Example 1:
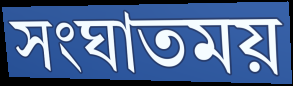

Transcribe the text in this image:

সংঘাতময়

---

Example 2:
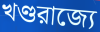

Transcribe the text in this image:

খণ্ডরাজ্যে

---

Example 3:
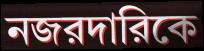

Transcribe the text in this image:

নজরদারিকে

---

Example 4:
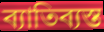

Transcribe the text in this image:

ব্যাতিব্যস্ত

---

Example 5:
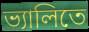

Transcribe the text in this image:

ভ্যালিতে